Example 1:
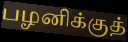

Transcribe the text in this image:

பழனிக்குத்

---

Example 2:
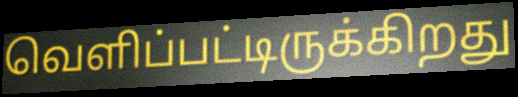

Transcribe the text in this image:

வெளிப்பட்டிருக்கிறது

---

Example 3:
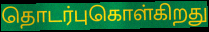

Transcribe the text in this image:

தொடர்புகொள்கிறது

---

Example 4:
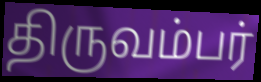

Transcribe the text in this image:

திருவம்பர்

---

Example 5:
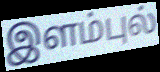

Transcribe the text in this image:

இளம்புல்